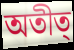
অতীত্